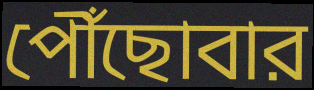
পৌঁছোবার